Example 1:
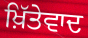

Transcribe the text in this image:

ਖ਼ਿੱਤੇਵਾਦ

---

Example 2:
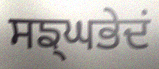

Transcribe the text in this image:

ਸਙ੍ਘਭੇਦਂ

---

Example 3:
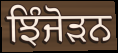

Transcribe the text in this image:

ਝਿੰਜੋੜਨ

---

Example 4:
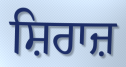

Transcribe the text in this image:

ਸ਼ਿਰਾਜ਼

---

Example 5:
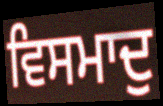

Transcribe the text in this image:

ਵਿਸਮਾਦੁ